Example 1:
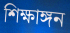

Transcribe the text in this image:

শিক্ষাঙ্গন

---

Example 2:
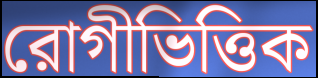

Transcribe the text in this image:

রোগীভিত্তিক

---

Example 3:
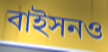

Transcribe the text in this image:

বাইসনও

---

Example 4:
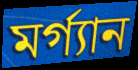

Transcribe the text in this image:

মর্গ্যান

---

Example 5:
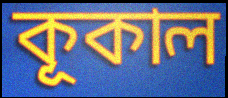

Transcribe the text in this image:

কূকাল